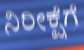
ನಿರೀಕ್ಷೆಗೆ